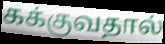
கக்குவதால்